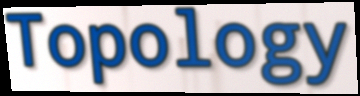
Topology